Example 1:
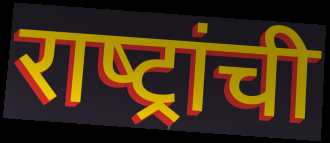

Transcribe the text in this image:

राष्ट्रांची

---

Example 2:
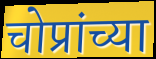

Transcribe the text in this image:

चोप्रांच्या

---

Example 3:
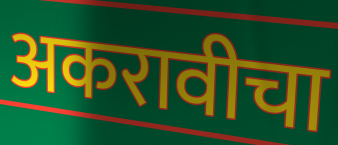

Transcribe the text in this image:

अकरावीचा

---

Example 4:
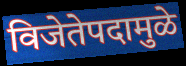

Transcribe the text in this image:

विजेतेपदामुळे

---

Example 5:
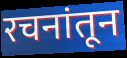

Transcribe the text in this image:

रचनांतून